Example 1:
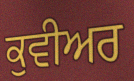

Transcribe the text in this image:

ਕੁਵੀਅਰ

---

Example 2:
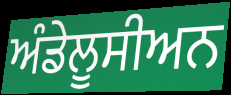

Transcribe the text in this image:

ਅੰਡੇਲੂਸੀਅਨ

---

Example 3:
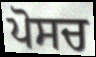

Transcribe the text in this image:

ਪੋਸਚ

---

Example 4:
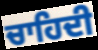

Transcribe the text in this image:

ਚਾਹਿਦੀ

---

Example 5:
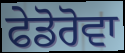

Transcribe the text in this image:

ਫੇਡੋਰੋਵਾ